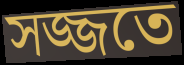
সজ্জতে